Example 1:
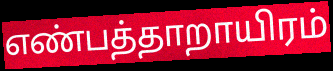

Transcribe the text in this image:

எண்பத்தாறாயிரம்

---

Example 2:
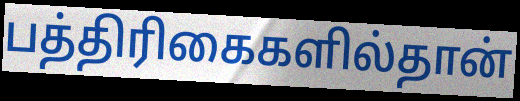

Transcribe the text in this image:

பத்திரிகைகளில்தான்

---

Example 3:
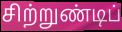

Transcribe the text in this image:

சிற்றுண்டிப்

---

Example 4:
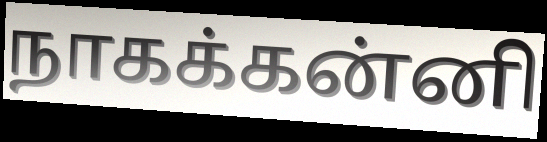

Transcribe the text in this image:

நாகக்கன்னி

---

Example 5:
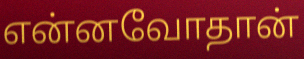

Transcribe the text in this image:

என்னவோதான்